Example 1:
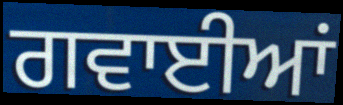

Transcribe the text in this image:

ਗਵਾਈਆਂ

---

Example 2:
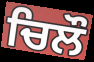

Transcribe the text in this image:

ਚਿਲੌ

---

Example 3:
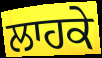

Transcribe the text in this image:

ਲਾਹਕੇ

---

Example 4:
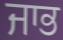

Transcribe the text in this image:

ਜਾਭ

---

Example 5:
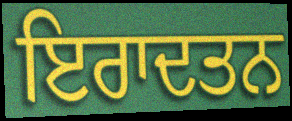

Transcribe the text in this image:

ਇਰਾਦਤਨ